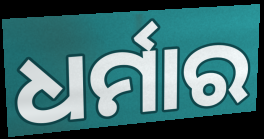
ଧର୍ମାର